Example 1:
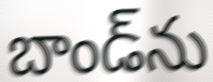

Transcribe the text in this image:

బాండ్‌ను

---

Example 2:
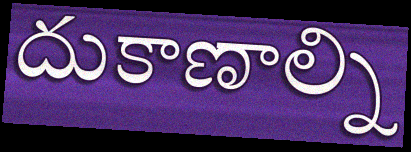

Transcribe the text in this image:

దుకాణాల్ని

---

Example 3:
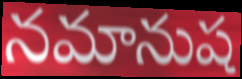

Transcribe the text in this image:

నమానుష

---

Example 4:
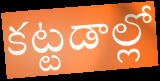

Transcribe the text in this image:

కట్టడాల్లో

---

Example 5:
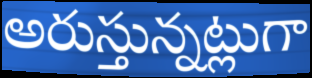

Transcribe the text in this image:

అరుస్తున్నట్లుగా